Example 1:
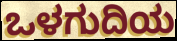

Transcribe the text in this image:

ಒಳಗುದಿಯ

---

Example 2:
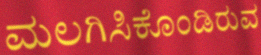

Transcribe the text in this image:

ಮಲಗಿಸಿಕೊಂಡಿರುವ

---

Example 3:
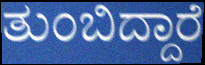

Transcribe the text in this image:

ತುಂಬಿದ್ದಾರೆ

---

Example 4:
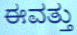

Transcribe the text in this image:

ಈವತ್ತು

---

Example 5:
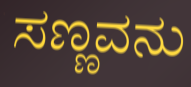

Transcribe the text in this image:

ಸಣ್ಣವನು